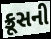
ક્રૂસની